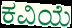
ಕವಿಯೆ